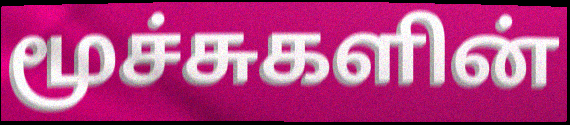
மூச்சுகளின்